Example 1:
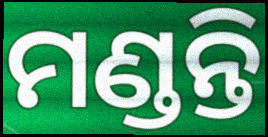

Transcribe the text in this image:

ମଣ୍ଡନ୍ତି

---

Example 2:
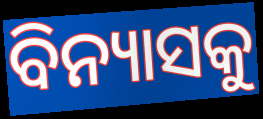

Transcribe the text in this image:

ବିନ୍ୟାସକୁ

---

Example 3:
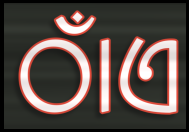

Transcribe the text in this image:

ଠାଁଏ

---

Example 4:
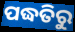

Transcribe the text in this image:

ପଦ୍ଧତିରୁ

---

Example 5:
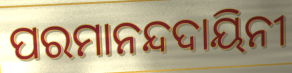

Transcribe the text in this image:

ପରମାନନ୍ଦଦାୟିନୀ